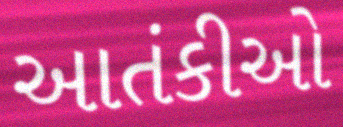
આતંકીઓ